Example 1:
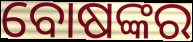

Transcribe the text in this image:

ବୋଷଙ୍କର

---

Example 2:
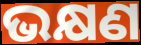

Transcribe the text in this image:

ଭକ୍ଷଣ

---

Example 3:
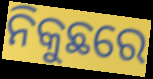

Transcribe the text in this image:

ନିକୁଛରେ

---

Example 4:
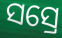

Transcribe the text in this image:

ସସ୍ରେ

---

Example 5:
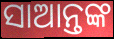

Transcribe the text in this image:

ସାଆନ୍ତଙ୍କ